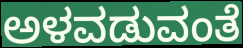
ಅಳವಡುವಂತೆ